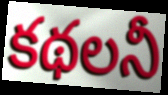
కథలనీ